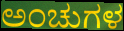
ಅಂಚುಗಳ